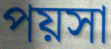
পয়সা